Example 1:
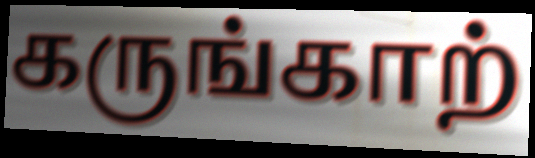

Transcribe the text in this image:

கருங்காற்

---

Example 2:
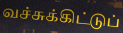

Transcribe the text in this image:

வச்சுக்கிட்டுப்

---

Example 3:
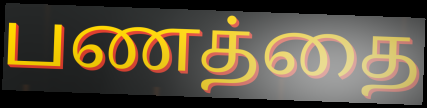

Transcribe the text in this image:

பணத்தை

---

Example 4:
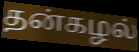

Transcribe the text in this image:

தன்கழல்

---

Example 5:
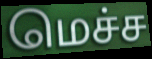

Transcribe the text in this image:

மெச்ச